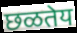
छळतेय